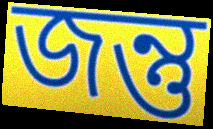
জন্তু